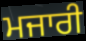
ਮਜਾਰੀ